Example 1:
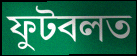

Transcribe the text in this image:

ফুটবলত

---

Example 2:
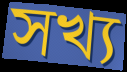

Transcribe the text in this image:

সখ্য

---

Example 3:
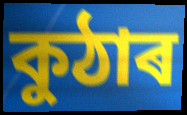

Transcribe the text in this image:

কুঠাৰ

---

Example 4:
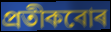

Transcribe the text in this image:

প্ৰতীকবোৰ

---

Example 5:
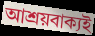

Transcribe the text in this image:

আশ্ৰয়বাক্যই